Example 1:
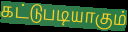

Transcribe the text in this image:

கட்டுபடியாகும்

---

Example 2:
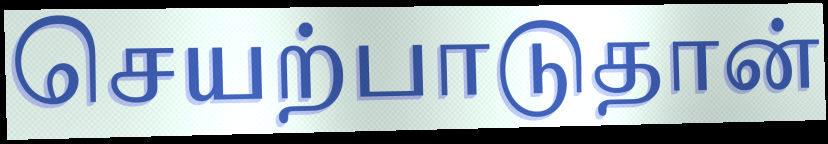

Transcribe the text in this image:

செயற்பாடுதான்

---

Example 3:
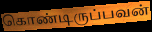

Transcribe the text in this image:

கொண்டிருப்பவன்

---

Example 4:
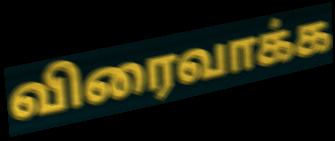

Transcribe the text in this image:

விரைவாக்க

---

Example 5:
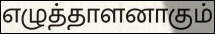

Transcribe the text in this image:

எழுத்தாளனாகும்